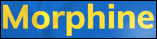
Morphine